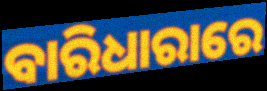
ବାରିଧାରାରେ